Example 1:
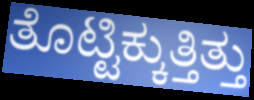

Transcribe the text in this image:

ತೊಟ್ಟಿಕ್ಕುತ್ತಿತ್ತು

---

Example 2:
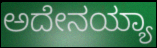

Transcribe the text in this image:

ಅದೇನಯ್ಯಾ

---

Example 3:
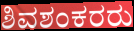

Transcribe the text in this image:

ಶಿವಶಂಕರರು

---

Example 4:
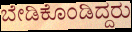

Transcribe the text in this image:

ಬೇಡಿಕೊಂಡಿದ್ದರು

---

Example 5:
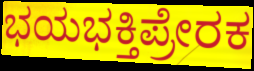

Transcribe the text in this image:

ಭಯಭಕ್ತಿಪ್ರೇರಕ